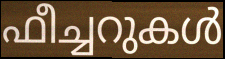
ഫീച്ചറുകൾ